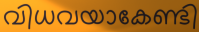
വിധവയാകേണ്ടി